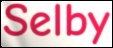
Selby